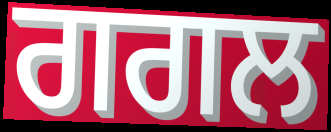
ਗਗਲ